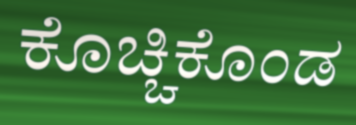
ಕೊಚ್ಚಿಕೊಂಡ